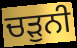
ਚੜੁਨੀ